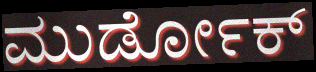
ಮುರ್ಡೋಕ್